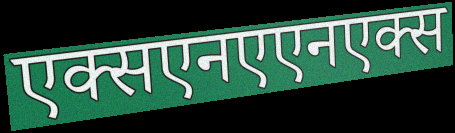
एक्सएनएएनएक्स